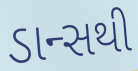
ડાન્સથી